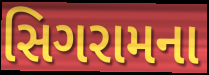
સિગરામના